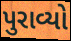
પુરાવ્યો